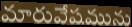
మారువేషమును